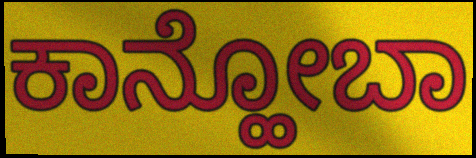
ಕಾನ್ಹೋಬಾ